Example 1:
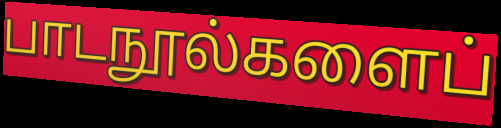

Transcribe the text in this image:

பாடநூல்களைப்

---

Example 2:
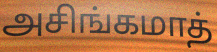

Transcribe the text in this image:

அசிங்கமாத்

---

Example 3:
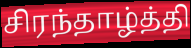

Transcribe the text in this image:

சிரந்தாழ்த்தி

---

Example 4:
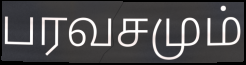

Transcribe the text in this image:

பரவசமும்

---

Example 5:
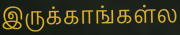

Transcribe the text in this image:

இருக்காங்கள்ல